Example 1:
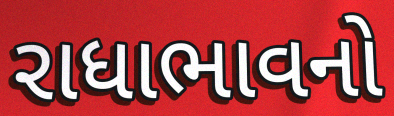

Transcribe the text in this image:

રાધાભાવનો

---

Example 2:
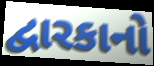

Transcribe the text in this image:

દ્વારકાનો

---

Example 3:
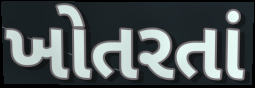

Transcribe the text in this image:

ખોતરતાં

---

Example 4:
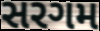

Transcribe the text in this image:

સરગમ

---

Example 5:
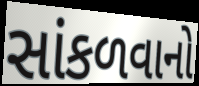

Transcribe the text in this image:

સાંકળવાનો